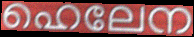
ഹെലേന